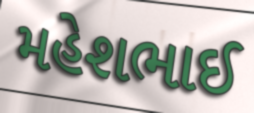
મહેશભાઈ